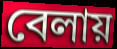
বেলায়